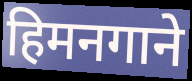
हिमनगाने